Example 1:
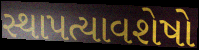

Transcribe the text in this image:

સ્થાપત્યાવશેષો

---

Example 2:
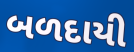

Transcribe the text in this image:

બળદાયી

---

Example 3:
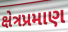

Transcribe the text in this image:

ક્ષેત્રપ્રમાણ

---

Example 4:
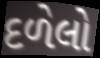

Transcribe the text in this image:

દળેલો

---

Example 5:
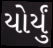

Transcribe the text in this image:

યોર્યું